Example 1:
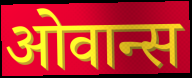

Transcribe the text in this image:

ओवान्स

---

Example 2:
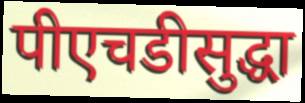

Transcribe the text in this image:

पीएचडीसुद्धा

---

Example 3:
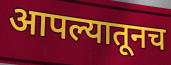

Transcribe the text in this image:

आपल्यातूनच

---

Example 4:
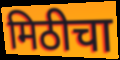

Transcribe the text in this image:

मिठीचा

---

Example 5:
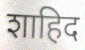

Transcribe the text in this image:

शाहिद